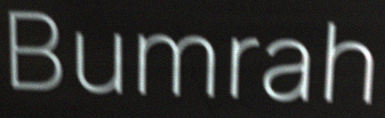
Bumrah